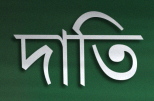
দাতি